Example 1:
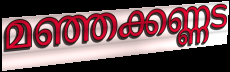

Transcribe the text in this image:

മഞ്ഞക്കണ്ണട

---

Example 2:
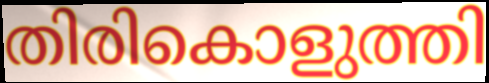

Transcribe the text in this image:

തിരികൊളുത്തി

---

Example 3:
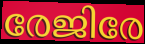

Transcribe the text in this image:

രേജിരേ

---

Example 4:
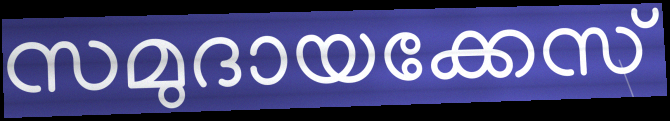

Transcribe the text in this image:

സമുദായക്കേസ്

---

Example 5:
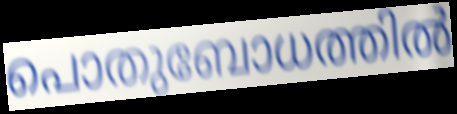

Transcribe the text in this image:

പൊതുബോധത്തിൽ